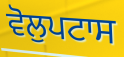
ਵੋਲੁਪਟਾਸ